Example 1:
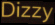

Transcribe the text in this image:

Dizzy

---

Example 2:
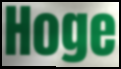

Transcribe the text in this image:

Hoge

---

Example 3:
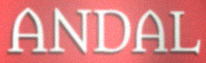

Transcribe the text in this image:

ANDAL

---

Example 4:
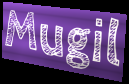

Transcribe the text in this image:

Mugil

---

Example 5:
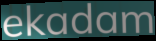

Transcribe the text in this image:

ekadam